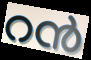
റൻ